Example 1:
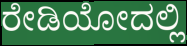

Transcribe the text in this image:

ರೇಡಿಯೋದಲ್ಲಿ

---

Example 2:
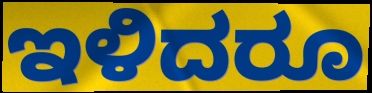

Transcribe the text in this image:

ಇಳಿದರೂ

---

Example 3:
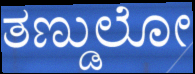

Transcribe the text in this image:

ತಣ್ಡುಲೋ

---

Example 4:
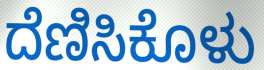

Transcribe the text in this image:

ದೆಣಿಸಿಕೊಳು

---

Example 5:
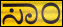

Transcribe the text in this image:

ಸಾಂ